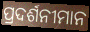
ପ୍ରଦର୍ଶନୀମାନ